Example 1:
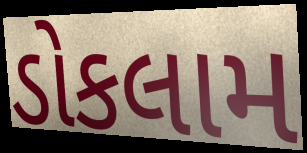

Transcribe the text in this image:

ડોકલામ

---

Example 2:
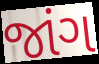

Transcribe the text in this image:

જાંગ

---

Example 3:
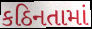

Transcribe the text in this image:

કઠિનતામાં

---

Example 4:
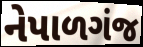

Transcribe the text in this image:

નેપાળગંજ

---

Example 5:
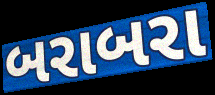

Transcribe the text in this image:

બરાબરા